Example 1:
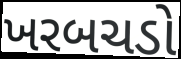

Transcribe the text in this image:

ખરબચડો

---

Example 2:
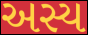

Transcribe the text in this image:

અસ્ય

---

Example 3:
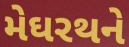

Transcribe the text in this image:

મેઘરથને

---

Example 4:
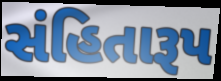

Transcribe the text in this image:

સંહિતારૂપ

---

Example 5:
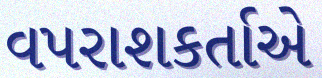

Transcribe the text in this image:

વપરાશકર્તાએ